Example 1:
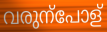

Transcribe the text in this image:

വരുന്പോള്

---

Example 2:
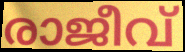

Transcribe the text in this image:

രാജീവ്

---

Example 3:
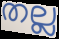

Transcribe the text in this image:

തല്ല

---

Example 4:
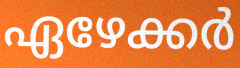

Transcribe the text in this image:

ഏഴേക്കർ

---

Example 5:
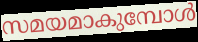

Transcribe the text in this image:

സമയമാകുമ്പോൾ